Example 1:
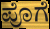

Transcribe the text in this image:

ಪೊಗೆ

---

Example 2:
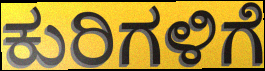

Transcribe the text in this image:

ಕುರಿಗಳಿಗೆ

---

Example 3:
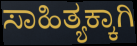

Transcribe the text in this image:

ಸಾಹಿತ್ಯಕ್ಕಾಗಿ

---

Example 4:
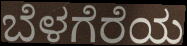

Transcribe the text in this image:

ಬೆಳಗೆರೆಯ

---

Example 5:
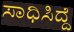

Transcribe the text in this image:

ಸಾಧಿಸಿದ್ದೆ